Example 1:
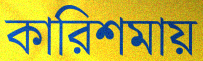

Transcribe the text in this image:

কারিশমায়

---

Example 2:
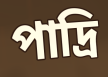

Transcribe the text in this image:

পাদ্রি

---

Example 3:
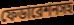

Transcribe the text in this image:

ফেডারেশনসহ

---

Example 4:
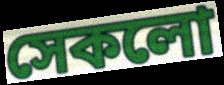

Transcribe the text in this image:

সেকলো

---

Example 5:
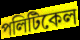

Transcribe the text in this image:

পলিটিকেল